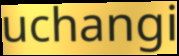
uchangi